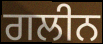
ਗਲੀਨ